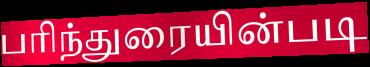
பரிந்துரையின்படி